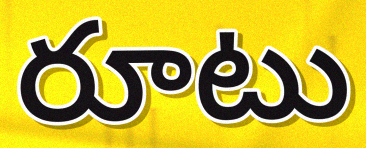
రూటు